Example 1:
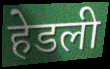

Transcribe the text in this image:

हेडली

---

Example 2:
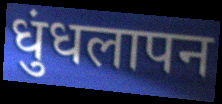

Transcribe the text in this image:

धुंधलापन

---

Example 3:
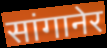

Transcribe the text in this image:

सांगानेर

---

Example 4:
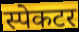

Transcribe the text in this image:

स्पेकटर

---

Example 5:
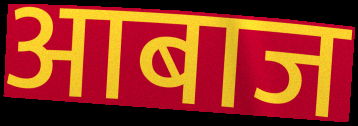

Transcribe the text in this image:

आबाज